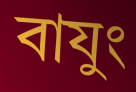
বাযুং